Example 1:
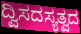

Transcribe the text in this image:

ದ್ವಿಸದಸ್ಯತ್ವದ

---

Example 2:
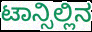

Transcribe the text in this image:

ಟಾನ್ಸಿಲ್ಲಿನ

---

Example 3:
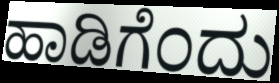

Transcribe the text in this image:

ಹಾಡಿಗೆಂದು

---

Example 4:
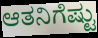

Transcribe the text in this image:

ಆತನಿಗೆಷ್ಟು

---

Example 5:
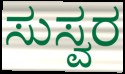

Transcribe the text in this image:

ಸುಸ್ವರ